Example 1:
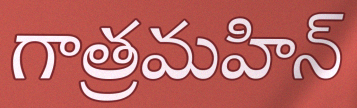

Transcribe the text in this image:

గాత్రమహిన్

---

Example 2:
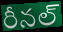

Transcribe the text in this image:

రీనల్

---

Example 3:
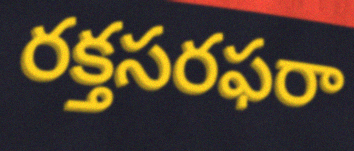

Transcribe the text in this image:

రక్తసరఫరా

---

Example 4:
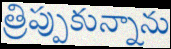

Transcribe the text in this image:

త్రిప్పుకున్నాను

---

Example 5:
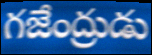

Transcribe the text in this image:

గజేంద్రుడు